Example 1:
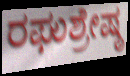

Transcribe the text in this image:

ರಘುಶ್ರೇಷ್ಠ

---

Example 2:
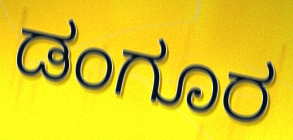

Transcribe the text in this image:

ಡಂಗೂರ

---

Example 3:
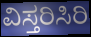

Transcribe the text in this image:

ವಿಸ್ತರಿಸಿರಿ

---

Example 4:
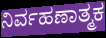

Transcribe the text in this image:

ನಿರ್ವಹಣಾತ್ಮಕ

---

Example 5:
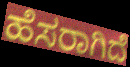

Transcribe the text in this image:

ಹೆಸರಾಗಿದೆ